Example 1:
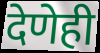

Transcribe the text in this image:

देणेही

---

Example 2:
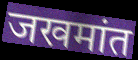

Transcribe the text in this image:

जखमांत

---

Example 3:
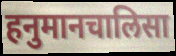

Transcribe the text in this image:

हनुमानचालिसा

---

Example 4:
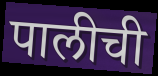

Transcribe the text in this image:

पालीची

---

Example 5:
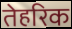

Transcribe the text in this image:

तेहरिक